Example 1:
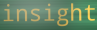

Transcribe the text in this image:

insight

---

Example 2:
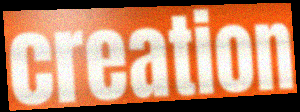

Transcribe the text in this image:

creation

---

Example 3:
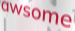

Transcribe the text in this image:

awsome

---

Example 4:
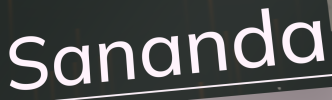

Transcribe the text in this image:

Sananda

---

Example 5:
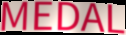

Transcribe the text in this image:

MEDAL